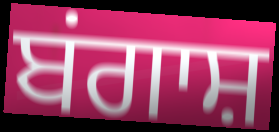
ਬਂਗਾਸ਼